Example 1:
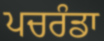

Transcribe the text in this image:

ਪਚਰੰਡਾ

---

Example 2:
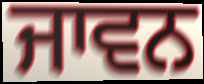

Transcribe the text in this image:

ਜਾਵਨ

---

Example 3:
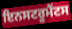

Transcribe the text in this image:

ਇਨਸਟਰੂਮੈਂਟਸ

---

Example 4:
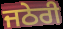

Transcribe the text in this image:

ਜਠੇਰੀ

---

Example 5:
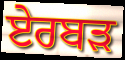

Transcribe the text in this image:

ਏਰਬੜ